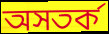
অসতর্ক